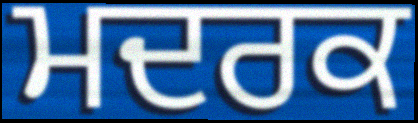
ਮਦਰਕ